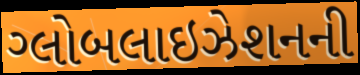
ગ્લોબલાઇઝેશનની